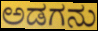
ಅಡಗನು